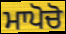
ਮਾਪੋਚੋ